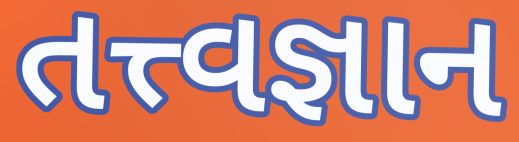
તત્ત્વજ્ઞાન